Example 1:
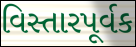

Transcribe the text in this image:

વિસ્તારપૂર્વક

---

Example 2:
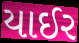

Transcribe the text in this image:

યાઈર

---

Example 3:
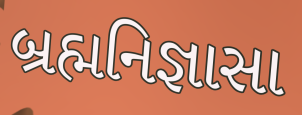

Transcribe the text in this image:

બ્રહ્મનિજ્ઞાસા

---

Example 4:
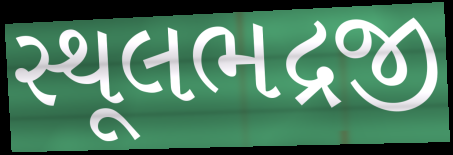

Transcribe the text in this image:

સ્થૂલભદ્રજી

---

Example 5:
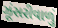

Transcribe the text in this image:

ઝૂંસરીવાળું